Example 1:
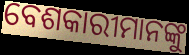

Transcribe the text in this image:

ବେଶକାରୀମାନଙ୍କୁ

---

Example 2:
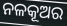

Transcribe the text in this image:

ନଳକୂଅର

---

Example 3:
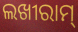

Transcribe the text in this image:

ଲଖୀରାମ୍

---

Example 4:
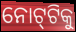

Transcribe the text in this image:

ନୋଟ୍‌ଟିକୁ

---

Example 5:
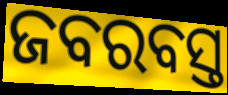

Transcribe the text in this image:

ଜବରବସ୍ତ